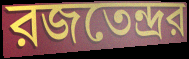
রজতেন্দ্রর